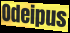
Odeipus